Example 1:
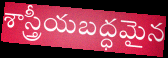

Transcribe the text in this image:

శాస్త్రీయబద్ధమైన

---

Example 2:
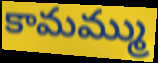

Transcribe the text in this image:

కామమ్ము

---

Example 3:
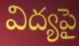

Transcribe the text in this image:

విద్యపై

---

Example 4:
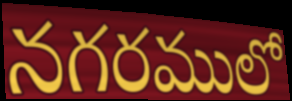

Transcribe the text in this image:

నగరములో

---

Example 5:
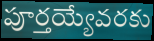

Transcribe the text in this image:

పూర్తయ్యేవరకు